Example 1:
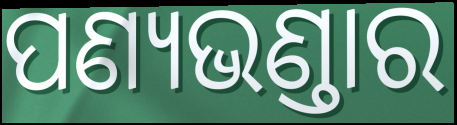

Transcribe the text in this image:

ପଣ୍ୟଭଣ୍ଡାର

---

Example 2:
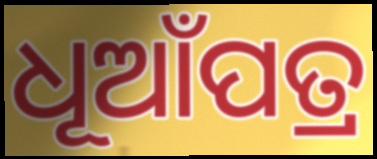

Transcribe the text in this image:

ଧୂଆଁପତ୍ର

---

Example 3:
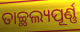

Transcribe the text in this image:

ତାଚ୍ଛଲ୍ୟପୂର୍ଣ୍ଣ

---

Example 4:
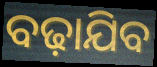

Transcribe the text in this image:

ବଢ଼ାଯିବ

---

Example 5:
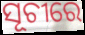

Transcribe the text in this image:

ସୂଚୀରେ